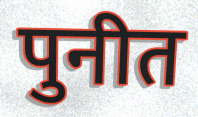
पुनीत